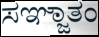
ಸಞ್ಜಾತಂ